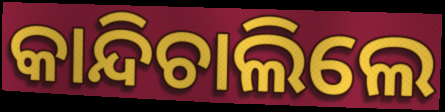
କାନ୍ଦିଚାଲିଲେ